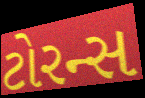
ટોરન્સ